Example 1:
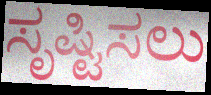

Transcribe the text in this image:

ಸೃಷ್ಟಿಸಲು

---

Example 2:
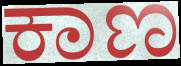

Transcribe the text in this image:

ಕಾಣ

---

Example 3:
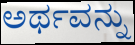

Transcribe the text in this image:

ಅರ್ಥವನ್ನು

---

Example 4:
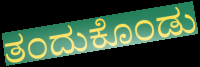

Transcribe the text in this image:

ತಂದುಕೊಂಡು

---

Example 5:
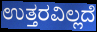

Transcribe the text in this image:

ಉತ್ತರವಿಲ್ಲದೆ